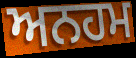
ਅਨਹਮ